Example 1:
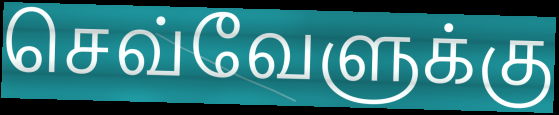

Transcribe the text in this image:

செவ்வேளுக்கு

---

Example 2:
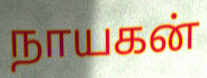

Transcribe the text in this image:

நாயகன்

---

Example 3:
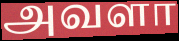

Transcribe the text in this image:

அவளா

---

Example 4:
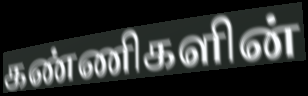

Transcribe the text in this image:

கண்ணிகளின்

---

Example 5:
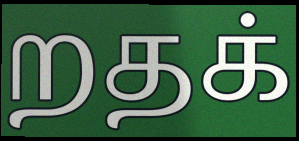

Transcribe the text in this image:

றதக்